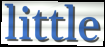
little